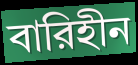
বারিহীন